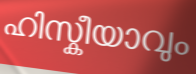
ഹിസ്കീയാവും